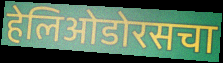
हेलिओडोरसचा